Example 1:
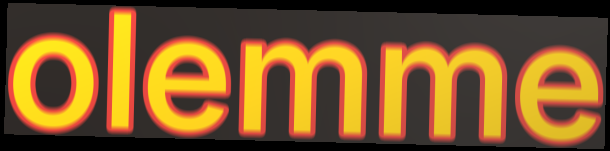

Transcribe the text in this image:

olemme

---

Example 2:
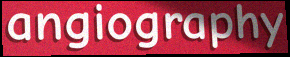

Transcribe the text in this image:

angiography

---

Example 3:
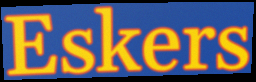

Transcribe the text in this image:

Eskers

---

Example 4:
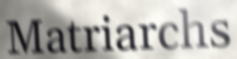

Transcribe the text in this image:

Matriarchs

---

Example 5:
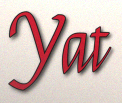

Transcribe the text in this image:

Yat